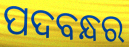
ପଦବନ୍ଧର